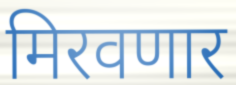
मिरवणार